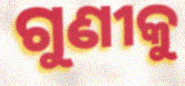
ଗୁଣୀକୁ